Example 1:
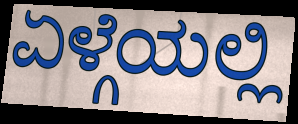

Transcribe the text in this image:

ಏಳ್ಗೆಯಲ್ಲಿ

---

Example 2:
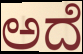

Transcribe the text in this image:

ಅದೆ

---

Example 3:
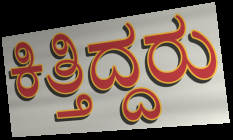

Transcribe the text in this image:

ಕಿತ್ತಿದ್ದರು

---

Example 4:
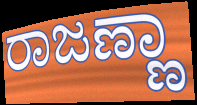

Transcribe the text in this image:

ರಾಜಣ್ಣಾ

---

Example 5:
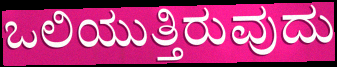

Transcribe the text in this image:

ಒಲಿಯುತ್ತಿರುವುದು